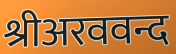
श्रीअरववन्द